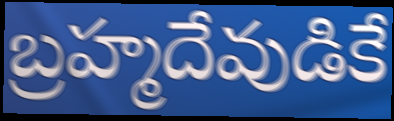
బ్రహ్మదేవుడికే